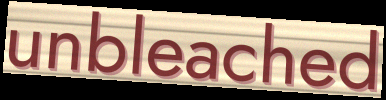
unbleached